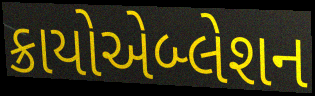
ક્રાયોએબ્લેશન